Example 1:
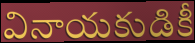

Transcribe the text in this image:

వినాయకుడికీ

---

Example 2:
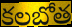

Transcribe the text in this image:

కలబోత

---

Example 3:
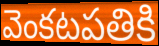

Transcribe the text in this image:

వెంకటపతికి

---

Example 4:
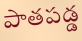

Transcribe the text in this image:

పాతపడ్డ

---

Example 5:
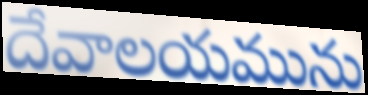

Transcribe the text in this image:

దేవాలయమును